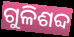
ଗୁଳିଶବ୍ଦ